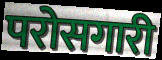
परोसगारी